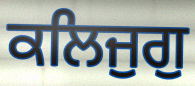
ਕਲਿਜੁਗੁ